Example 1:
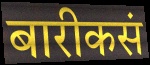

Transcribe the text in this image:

बारीकसं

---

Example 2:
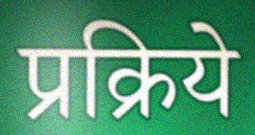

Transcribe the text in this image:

प्रक्रिये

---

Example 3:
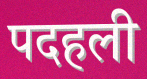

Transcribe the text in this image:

पदहली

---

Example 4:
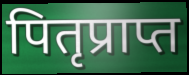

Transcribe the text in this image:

पितृप्राप्त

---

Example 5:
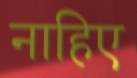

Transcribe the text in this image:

नाहिए